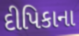
દીપિકાના